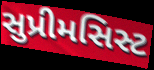
સુપ્રીમસિસ્ટ